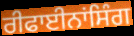
ਰੀਫਾਈਨਾਂਸਿੰਗ